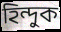
হিন্দুক